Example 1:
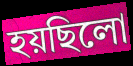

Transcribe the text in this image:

হয়ছিলো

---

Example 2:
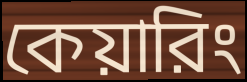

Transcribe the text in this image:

কেয়ারিং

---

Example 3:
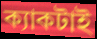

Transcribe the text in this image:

ক্যাকটাই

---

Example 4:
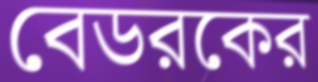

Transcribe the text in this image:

বেডরকের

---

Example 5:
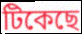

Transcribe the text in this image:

টিকেছে